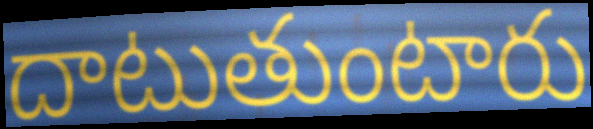
దాటుతుంటారు